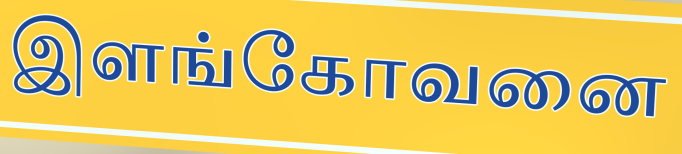
இளங்கோவனை